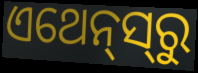
ଏଥେନ୍‌ସ୍‌ରୁ